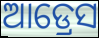
ଆଡ୍ରେସ